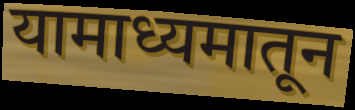
यामाध्यमातून